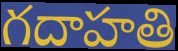
గదాహతి